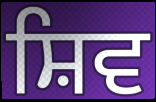
ਸ਼ਿਵ